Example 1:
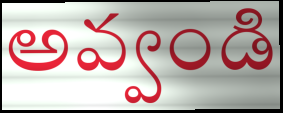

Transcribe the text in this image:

అవ్వండి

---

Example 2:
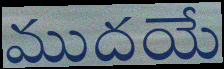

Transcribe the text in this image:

ముదయే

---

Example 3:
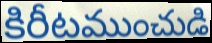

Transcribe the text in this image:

కిరీటముంచుడి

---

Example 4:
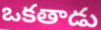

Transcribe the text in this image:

ఒకతాడు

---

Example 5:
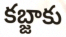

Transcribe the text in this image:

కబ్జాకు